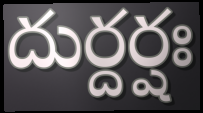
దుర్దర్షః